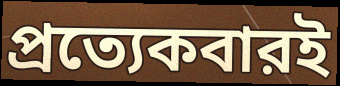
প্রত্যেকবারই